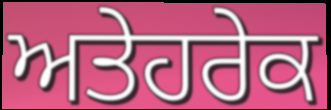
ਅਤੇਹਰੇਕ